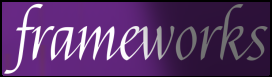
frameworks